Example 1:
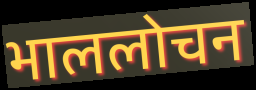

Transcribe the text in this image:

भाललोचन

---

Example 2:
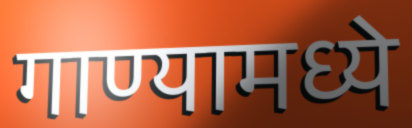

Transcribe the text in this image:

गाण्यामध्ये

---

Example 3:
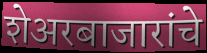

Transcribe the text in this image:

शेअरबाजारांचे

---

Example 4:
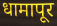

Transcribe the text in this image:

धामापूर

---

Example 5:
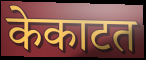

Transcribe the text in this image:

केकाटत